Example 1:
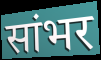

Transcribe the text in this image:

सांभर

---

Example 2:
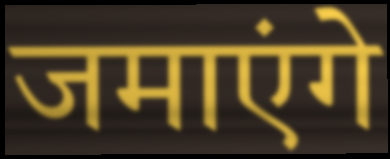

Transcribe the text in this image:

जमाएंगे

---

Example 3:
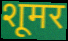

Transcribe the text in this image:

शूमर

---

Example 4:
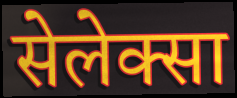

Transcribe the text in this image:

सेलेक्सा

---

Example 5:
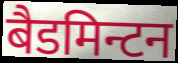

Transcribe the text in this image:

बैडमिन्टन